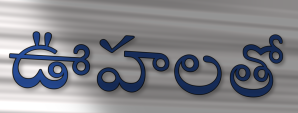
ఊహలతో